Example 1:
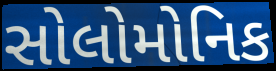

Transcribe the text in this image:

સોલોમોનિક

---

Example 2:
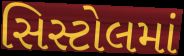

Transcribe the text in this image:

સિસ્ટોલમાં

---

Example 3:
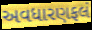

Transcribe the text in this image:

અવધારણફલં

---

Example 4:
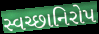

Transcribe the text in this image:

સ્વચ્છાનિરોપ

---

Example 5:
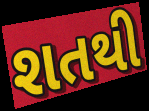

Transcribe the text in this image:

શતથી